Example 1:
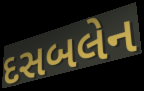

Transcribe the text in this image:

દસબલેન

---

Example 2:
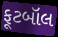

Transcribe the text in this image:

ફૂટબૉલ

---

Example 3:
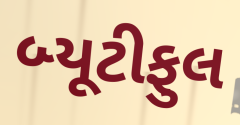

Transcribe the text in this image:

બ્યૂટીફુલ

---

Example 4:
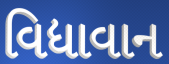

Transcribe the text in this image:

વિદ્યાવાન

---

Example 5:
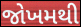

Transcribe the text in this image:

જોખમથી